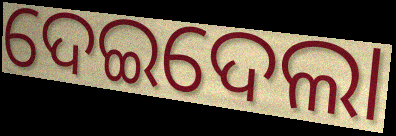
ଦେଇଦେଲା